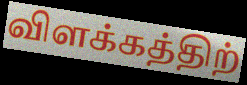
விளக்கத்திற்